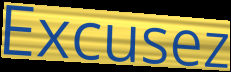
Excusez